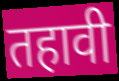
तहावी